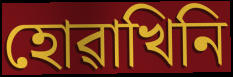
হোৱাখিনি